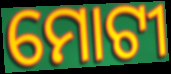
ମୋଟୀ